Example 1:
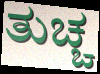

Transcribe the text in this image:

ತುಚ್ಚ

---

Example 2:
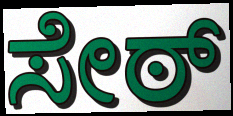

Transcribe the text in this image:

ಸೇಠ್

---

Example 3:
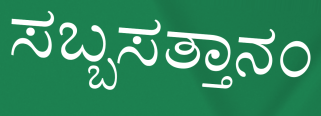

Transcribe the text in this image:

ಸಬ್ಬಸತ್ತಾನಂ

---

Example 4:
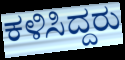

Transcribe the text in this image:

ಕಳಿಸಿದ್ದರು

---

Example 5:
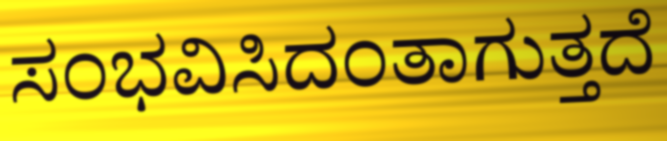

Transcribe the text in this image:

ಸಂಭವಿಸಿದಂತಾಗುತ್ತದೆ